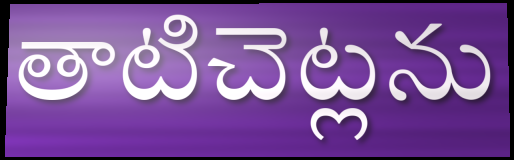
తాటిచెట్లను